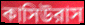
কাসিউরাস